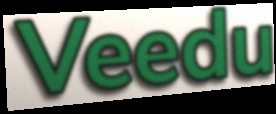
Veedu